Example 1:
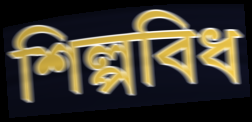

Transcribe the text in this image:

শিল্পবিধ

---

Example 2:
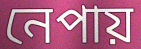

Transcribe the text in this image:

নেপায়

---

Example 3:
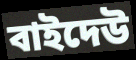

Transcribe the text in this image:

বাইদেউ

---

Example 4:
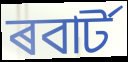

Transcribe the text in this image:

ৰবাৰ্ট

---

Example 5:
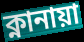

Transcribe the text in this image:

ক্নানায়া